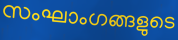
സംഘാംഗങ്ങളുടെ